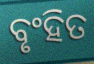
ବୃଂହିତ